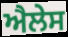
ਐਲੇਸ